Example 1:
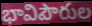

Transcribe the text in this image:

భావిపౌరుల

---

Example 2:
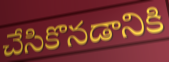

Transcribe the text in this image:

చేసికొనడానికి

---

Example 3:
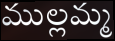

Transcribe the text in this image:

ముల్లమ్మ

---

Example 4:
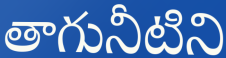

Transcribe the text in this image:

తాగునీటిని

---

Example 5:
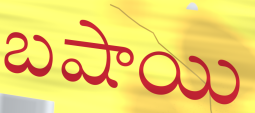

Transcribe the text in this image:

బషాయి